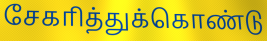
சேகரித்துக்கொண்டு